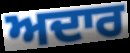
ਅਦਾਰ